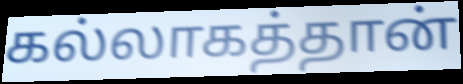
கல்லாகத்தான்